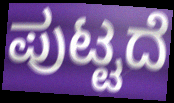
ಪುಟ್ಟದೆ